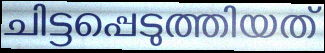
ചിട്ടപ്പെടുത്തിയത്